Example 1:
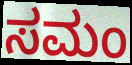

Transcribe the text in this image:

ಸಮಂ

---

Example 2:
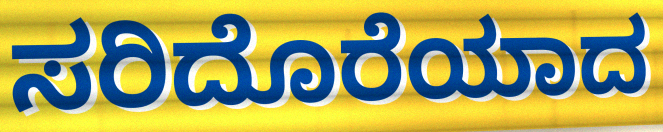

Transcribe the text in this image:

ಸರಿದೊರೆಯಾದ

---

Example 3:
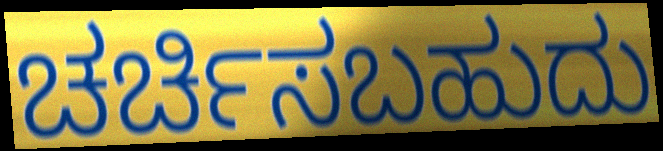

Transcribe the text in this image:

ಚರ್ಚಿಸಬಹುದು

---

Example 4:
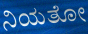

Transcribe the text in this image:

ನಿಯತೋ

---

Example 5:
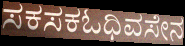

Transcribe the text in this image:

ಸಕಸಕಓಧಿವಸೇನ